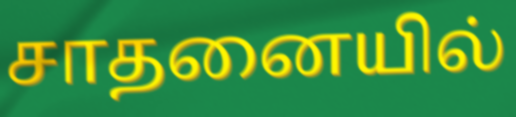
சாதனையில்